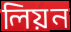
লিয়ন